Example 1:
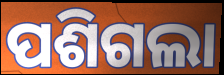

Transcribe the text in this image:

ପଶିଗଲା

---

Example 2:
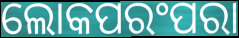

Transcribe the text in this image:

ଲୋକପରଂପରା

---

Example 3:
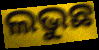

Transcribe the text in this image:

ଲଭୁଛ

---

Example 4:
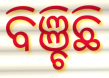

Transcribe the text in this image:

ବିଞ୍ଚିଛି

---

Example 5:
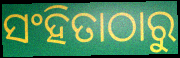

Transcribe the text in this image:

ସଂହିତାଠାରୁ